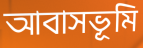
আবাসভূমি